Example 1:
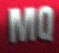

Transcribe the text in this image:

MQ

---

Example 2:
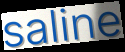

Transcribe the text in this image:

saline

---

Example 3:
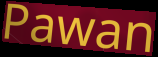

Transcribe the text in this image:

Pawan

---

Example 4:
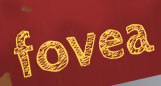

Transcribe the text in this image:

fovea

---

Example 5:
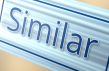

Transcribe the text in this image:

Similar